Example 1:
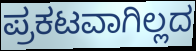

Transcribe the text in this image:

ಪ್ರಕಟವಾಗಿಲ್ಲದ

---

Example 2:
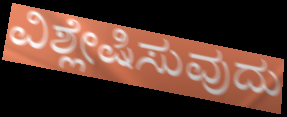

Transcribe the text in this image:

ವಿಶ್ಲೇಷಿಸುವುದು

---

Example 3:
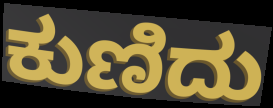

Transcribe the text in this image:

ಕುಣಿದು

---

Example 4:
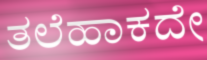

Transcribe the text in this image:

ತಲೆಹಾಕದೇ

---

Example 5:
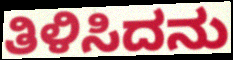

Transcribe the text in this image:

ತಿಳಿಸಿದನು